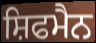
ਸ਼ਿਫਮੈਨ